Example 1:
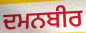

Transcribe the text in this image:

ਦਮਨਬੀਰ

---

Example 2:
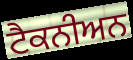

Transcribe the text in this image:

ਟੈਕਨੀਅਨ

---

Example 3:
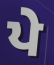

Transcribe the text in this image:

ਪੇ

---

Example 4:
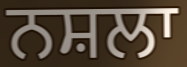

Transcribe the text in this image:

ਨਸ਼ਲਾ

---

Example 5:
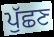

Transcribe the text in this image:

ਪੁੱਛਣ